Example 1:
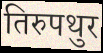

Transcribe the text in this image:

तिरुपथुर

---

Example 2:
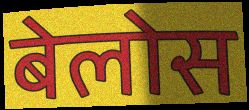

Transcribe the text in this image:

बेलोस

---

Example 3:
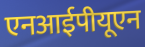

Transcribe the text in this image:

एनआईपीयूएन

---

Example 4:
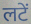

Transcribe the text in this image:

लटें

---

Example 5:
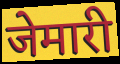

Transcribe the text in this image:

जेमारी